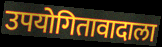
उपयोगितावादाला